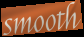
smooth